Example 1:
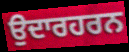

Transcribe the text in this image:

ਉਦਾਰਹਰਨ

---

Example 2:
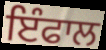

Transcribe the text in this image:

ਇੰਫਾਲ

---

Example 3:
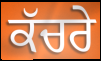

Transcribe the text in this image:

ਕੱਚਰੇ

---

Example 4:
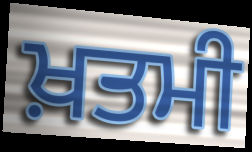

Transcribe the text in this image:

ਖ਼ਤਮੀ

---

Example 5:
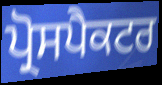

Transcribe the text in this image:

ਪ੍ਰੋਸਪੈਕਟਰ